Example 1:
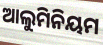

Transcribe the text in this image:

ଆଲୁମିନିୟମ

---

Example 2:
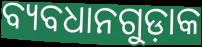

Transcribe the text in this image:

ବ୍ୟବଧାନଗୁଡ଼ାକ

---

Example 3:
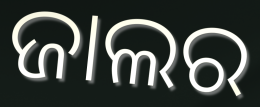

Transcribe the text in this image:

ଜାଲର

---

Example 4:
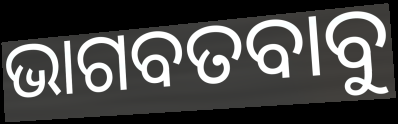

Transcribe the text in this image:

ଭାଗବତବାବୁ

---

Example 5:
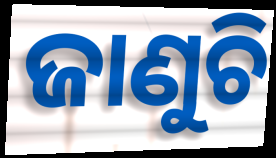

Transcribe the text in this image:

ଜାଣୁଚି